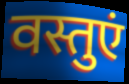
वस्तुएं